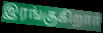
இரங்குகிறார்